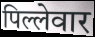
पिल्लेवार